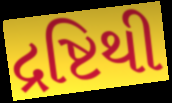
દ્રષ્ટિથી